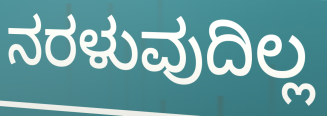
ನರಳುವುದಿಲ್ಲ